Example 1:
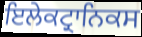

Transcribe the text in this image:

ਇਲੇਕਟ੍ਰਾਨਿਕਸ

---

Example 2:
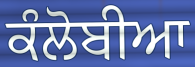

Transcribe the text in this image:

ਕੰਲੋਬੀਆ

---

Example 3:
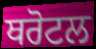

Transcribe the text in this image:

ਥਰੋਟਲ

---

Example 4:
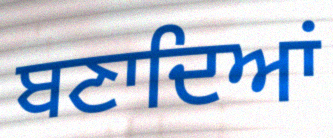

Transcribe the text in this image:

ਬਣਾਦਿਆਂ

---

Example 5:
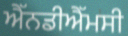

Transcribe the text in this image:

ਐੱਨਡੀਐੱਮਸੀ